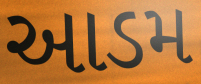
આડમ